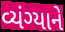
વ્યંગ્યાને